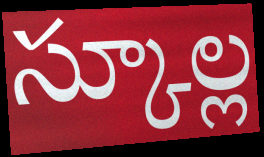
స్కూల్ల